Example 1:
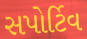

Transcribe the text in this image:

સપોર્ટિવ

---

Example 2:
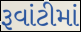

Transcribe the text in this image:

રૂવાંટીમાં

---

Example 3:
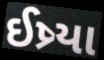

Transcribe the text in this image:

ઈષ્ર્યા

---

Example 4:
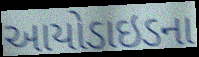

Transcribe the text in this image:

આયોડાઇડના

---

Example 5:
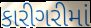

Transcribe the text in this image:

કારીગરીમાં